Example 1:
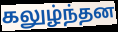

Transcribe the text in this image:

கலுழ்ந்தன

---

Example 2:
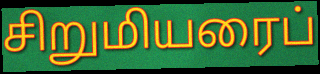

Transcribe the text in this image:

சிறுமியரைப்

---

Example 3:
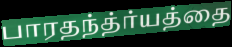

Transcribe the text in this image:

பாரதந்த்ர்யத்தை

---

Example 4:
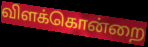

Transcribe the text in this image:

விளக்கொன்றை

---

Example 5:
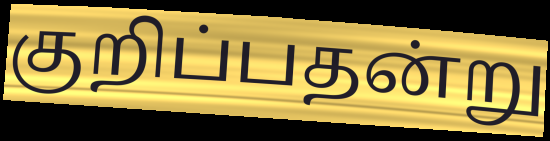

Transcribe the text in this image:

குறிப்பதன்று